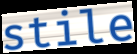
stile